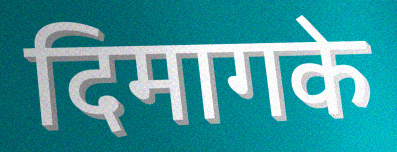
दिमागके